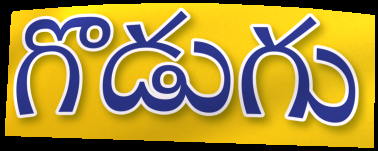
గొడుగు